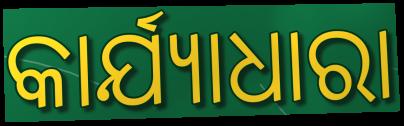
କାର୍ଯ୍ୟାଧାରା